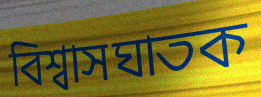
বিশ্বাসঘাতক